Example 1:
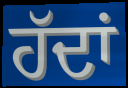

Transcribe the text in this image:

ਹੱਦਾਂ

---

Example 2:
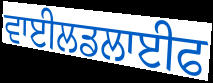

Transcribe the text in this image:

ਵਾਈਲਡਲਾਈਫ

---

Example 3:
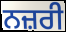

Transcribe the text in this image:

ਨਜ਼ਰੀ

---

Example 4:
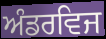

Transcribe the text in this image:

ਅੰਡਰਵਿਜ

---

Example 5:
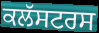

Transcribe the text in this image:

ਕਲੱਸਟਰਸ